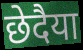
छेदैया